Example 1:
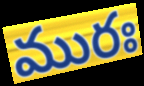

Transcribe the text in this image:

మురః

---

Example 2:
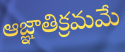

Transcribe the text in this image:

ఆజ్ఞాతిక్రమమే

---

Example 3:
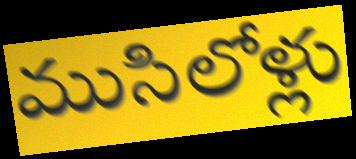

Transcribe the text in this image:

ముసిలోళ్లు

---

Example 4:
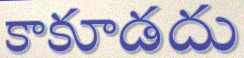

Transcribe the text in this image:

కాకూడదు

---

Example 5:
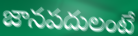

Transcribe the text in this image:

జానపదులంటే